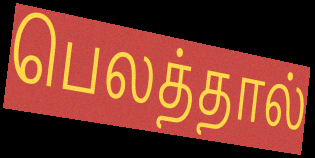
பெலத்தால்